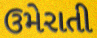
ઉમેરાતી